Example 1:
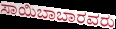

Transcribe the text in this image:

ಸಾಯಿಬಾಬಾರವರು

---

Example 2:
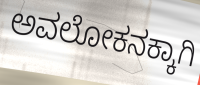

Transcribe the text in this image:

ಅವಲೋಕನಕ್ಕಾಗಿ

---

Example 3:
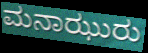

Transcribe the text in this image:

ಮನಾಝುರು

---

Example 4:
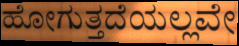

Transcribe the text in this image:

ಹೋಗುತ್ತದೆಯಲ್ಲವೇ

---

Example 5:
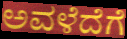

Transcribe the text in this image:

ಅವಳೆದೆಗೆ